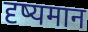
दृष्यमान